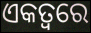
ଏକତ୍ୱରେ